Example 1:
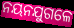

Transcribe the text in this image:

ନୟନଯୁଗଳେ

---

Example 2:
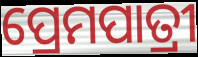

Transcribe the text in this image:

ପ୍ରେମପାତ୍ରୀ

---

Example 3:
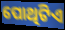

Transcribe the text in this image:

ପୋଥିଟିଏ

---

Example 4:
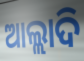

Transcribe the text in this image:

ଆଲ୍ଲାଦି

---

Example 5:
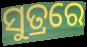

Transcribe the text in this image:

ସୁତ୍ରରେ